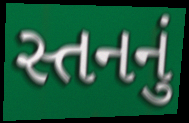
સ્તનનું